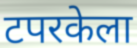
टपरकेला